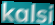
kalsi